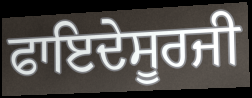
ਫਾਇਦੇਸੂਰਜੀ